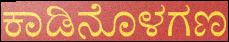
ಕಾಡಿನೊಳಗಣ